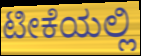
ಟೀಕೆಯಲ್ಲಿ